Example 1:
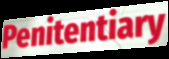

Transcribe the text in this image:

Penitentiary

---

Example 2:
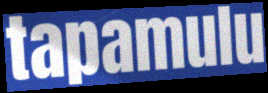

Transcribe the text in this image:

tapamulu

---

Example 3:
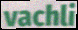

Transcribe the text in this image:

vachli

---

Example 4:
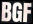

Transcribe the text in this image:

BGF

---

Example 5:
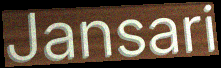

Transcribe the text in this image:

Jansari